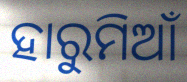
ହାରୁମିଆଁ